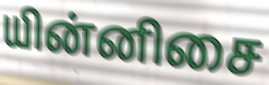
யின்னிசை